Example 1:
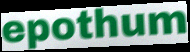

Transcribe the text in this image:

epothum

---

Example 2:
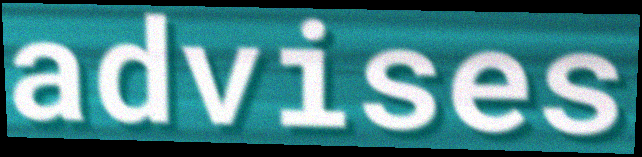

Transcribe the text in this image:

advises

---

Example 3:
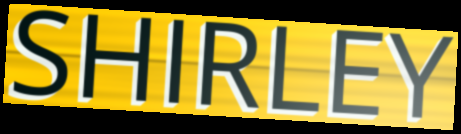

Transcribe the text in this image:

SHIRLEY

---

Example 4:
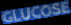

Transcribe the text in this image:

GLUCOSE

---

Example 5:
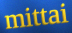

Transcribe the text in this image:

mittai